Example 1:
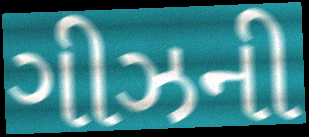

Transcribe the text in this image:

ગીઝની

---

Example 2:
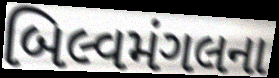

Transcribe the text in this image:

બિલ્વમંગલના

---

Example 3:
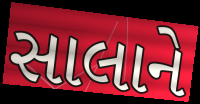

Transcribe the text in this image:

સાલાને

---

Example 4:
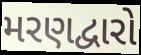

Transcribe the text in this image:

મરણદ્વારો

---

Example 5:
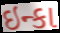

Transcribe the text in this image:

ઇન્કા